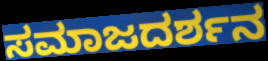
ಸಮಾಜದರ್ಶನ